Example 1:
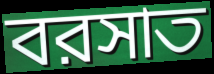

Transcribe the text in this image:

বরসাত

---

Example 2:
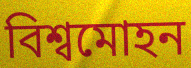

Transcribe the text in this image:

বিশ্বমোহন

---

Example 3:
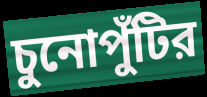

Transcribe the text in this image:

চুনোপুঁটির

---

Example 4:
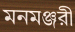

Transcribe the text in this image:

মনমঞ্জরী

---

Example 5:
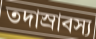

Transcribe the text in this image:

তদাস্রাবস্য